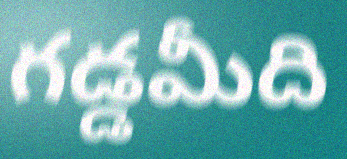
గడ్డమీది